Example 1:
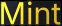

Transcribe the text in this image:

Mint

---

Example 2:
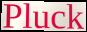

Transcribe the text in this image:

Pluck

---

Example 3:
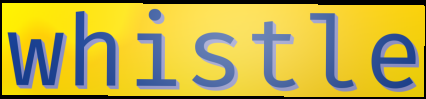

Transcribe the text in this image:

whistle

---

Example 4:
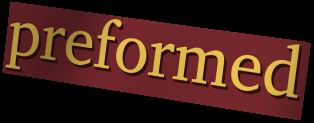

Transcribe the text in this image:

preformed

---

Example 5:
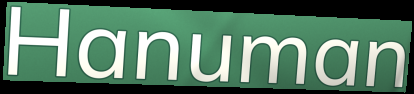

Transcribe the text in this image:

Hanuman